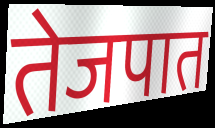
तेजपात